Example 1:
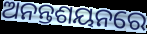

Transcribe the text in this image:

ଅନନ୍ତଶୟନରେ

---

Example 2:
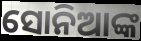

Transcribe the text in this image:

ସୋନିଆଙ୍କ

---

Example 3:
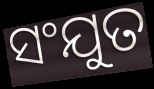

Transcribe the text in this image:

ସଂଯୁତ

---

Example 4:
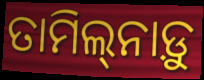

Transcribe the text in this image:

ତାମିଲ୍‌ନାଡ଼ୁ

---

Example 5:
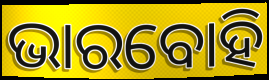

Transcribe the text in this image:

ଭାରବୋହି